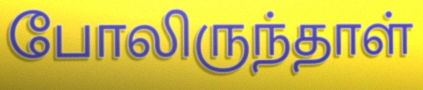
போலிருந்தாள்